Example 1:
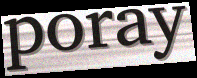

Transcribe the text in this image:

poray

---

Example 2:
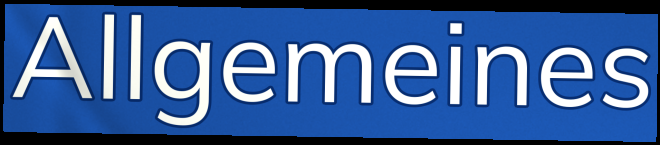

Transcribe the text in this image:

Allgemeines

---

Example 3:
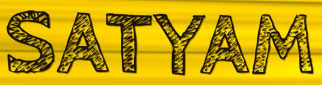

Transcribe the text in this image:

SATYAM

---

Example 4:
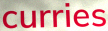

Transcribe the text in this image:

curries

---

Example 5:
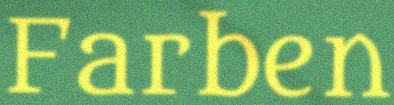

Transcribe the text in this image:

Farben